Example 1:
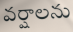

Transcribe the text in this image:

వర్షాలను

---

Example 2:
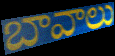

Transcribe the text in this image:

బావాలు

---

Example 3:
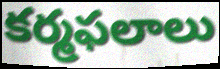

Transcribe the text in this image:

కర్మఫలాలు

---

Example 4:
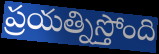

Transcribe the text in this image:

ప్రయత్నిస్తోంది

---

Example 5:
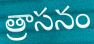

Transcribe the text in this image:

త్రాసనం